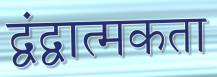
द्वंद्वात्मकता